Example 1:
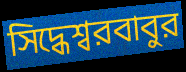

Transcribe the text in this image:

সিদ্ধেশ্বরবাবুর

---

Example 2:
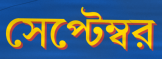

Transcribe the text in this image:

সেপ্টেম্বর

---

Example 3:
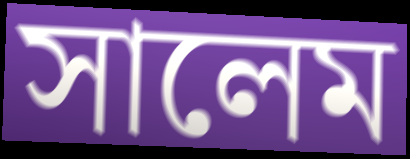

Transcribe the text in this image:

সালেম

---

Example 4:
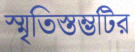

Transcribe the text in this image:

স্মৃতিস্তম্ভটির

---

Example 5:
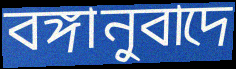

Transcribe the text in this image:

বঙ্গানুবাদে